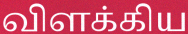
விளக்கிய